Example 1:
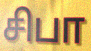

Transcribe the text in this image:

சிபா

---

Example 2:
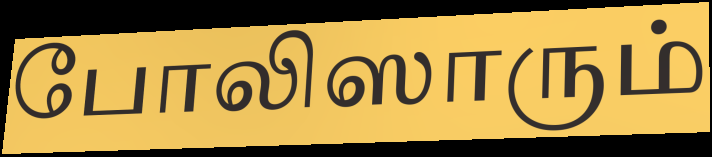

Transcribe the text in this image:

போலிஸாரும்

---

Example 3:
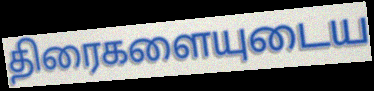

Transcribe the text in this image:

திரைகளையுடைய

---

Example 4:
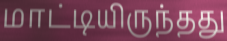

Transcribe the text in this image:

மாட்டியிருந்தது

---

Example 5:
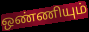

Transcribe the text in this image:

ஒண்ணியும்